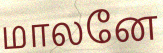
மாலனே